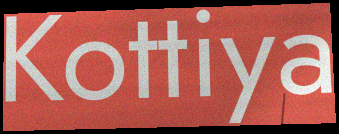
Kottiya